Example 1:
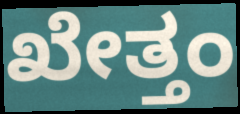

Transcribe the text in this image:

ಖೇತ್ತಂ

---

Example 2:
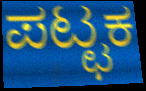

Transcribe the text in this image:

ಪಟ್ಟಕ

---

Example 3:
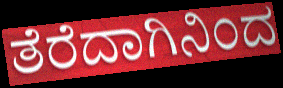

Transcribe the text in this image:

ತೆರೆದಾಗಿನಿಂದ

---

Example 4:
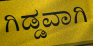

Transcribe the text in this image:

ಗಿಡ್ಡವಾಗಿ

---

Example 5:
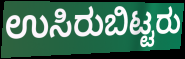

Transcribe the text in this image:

ಉಸಿರುಬಿಟ್ಟರು